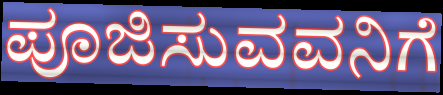
ಪೂಜಿಸುವವನಿಗೆ